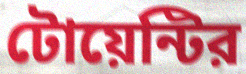
টোয়েন্টির